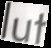
lut